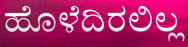
ಹೊಳೆದಿರಲಿಲ್ಲ